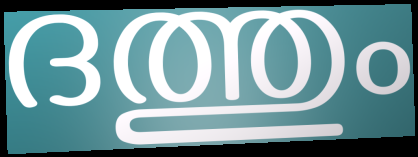
ദത്തും